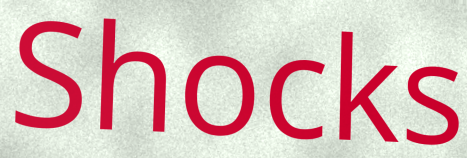
Shocks